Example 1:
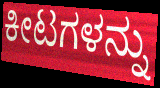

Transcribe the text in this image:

ಕೀಟಗಳನ್ನು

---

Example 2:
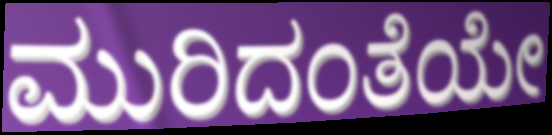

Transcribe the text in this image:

ಮುರಿದಂತೆಯೇ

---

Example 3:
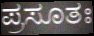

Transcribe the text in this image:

ಪ್ರಸೂತಃ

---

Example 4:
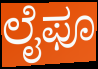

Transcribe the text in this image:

ಲೈಫೂ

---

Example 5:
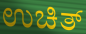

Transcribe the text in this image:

ಉಚಿತ್